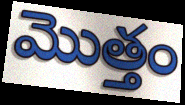
మొత్తం